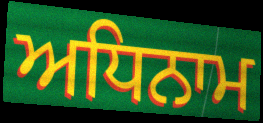
ਅਧਿਨਾਮ